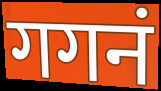
गगनं